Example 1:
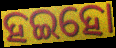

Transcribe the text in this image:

ହଇହୋ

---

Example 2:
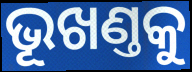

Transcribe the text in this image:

ଭୂଖଣ୍ତକୁ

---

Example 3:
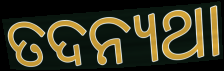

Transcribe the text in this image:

ତଦନ୍ୟଥା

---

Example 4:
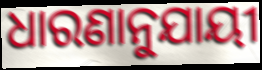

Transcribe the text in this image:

ଧାରଣାନୁଯାୟୀ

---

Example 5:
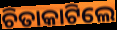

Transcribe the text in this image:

ଚିତାକାଟିଲେ